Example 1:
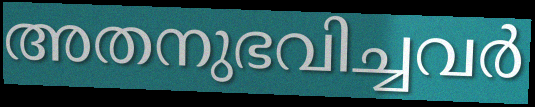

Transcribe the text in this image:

അതനുഭവിച്ചവർ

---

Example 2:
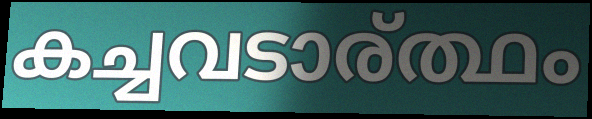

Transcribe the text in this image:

കച്ചവടാര്ത്ഥം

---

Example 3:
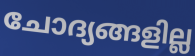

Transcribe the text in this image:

ചോദ്യങ്ങളില്ല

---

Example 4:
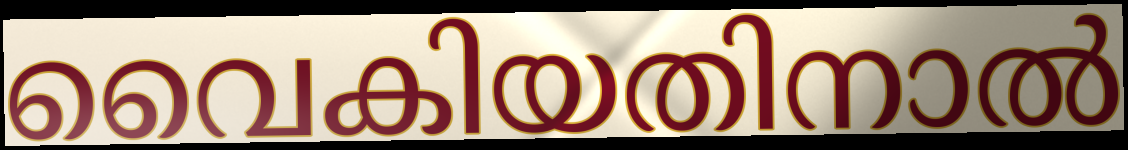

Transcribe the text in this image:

വൈകിയതിനാൽ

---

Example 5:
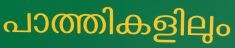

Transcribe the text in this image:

പാത്തികളിലും